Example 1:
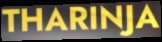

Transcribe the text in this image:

THARINJA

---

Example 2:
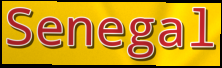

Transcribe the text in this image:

Senegal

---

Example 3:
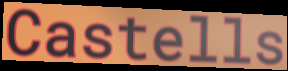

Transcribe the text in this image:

Castells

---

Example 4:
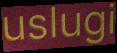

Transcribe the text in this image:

uslugi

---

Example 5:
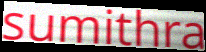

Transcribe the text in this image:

sumithra